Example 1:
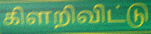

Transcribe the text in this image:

கிளறிவிட்டு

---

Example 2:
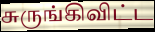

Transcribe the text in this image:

சுருங்கிவிட்ட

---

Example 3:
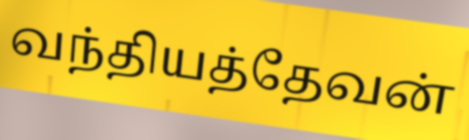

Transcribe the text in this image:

வந்தியத்தேவன்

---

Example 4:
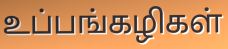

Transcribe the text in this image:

உப்பங்கழிகள்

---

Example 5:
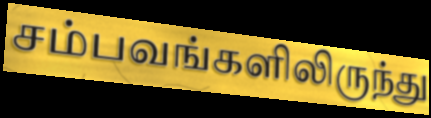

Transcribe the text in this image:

சம்பவங்களிலிருந்து